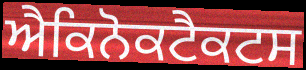
ਐਕਿਨੋਕਟੈਕਟਸ